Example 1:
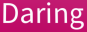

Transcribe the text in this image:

Daring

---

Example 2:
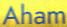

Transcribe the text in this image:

Aham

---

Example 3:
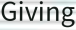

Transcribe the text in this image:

Giving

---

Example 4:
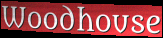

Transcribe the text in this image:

Woodhouse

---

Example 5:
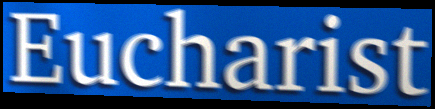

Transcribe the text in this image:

Eucharist